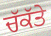
ਚੱਕੱਤੇ